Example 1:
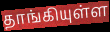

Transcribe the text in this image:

தாங்கியுள்ள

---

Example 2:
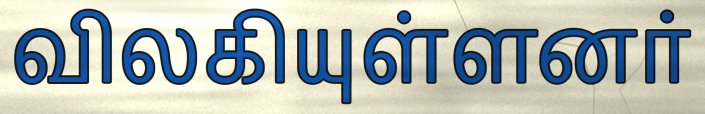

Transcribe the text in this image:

விலகியுள்ளனர்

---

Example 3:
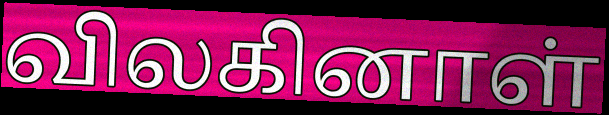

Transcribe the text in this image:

விலகினாள்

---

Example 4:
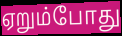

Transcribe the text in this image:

ஏறும்போது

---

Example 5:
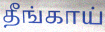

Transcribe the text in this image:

தீங்காய்